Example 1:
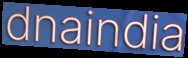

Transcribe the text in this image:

dnaindia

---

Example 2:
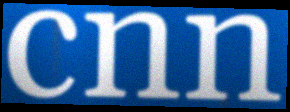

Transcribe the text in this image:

cnn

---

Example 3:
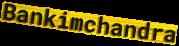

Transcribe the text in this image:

Bankimchandra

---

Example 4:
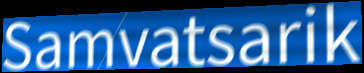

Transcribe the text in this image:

Samvatsarik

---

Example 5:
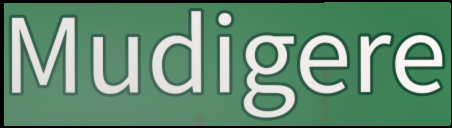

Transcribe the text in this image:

Mudigere